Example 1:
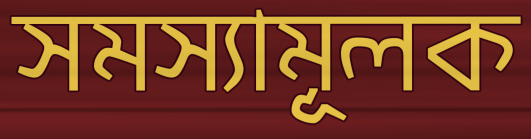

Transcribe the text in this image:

সমস্যামূলক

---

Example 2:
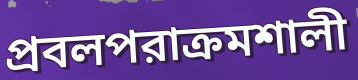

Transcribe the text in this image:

প্রবলপরাক্রমশালী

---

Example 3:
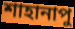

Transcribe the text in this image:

শাহানাপু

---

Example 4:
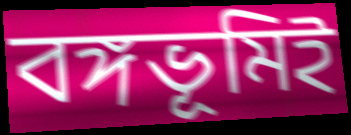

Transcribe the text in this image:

বঙ্গভূমিই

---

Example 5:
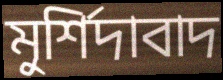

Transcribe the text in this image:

মুর্শিদাবাদ